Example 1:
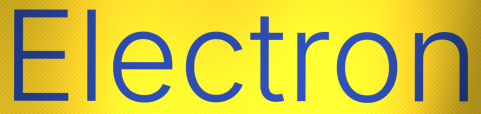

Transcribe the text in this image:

Electron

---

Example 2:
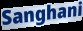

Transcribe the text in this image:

Sanghani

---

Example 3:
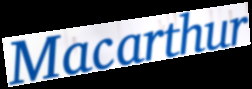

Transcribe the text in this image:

Macarthur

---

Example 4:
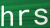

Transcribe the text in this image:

hrs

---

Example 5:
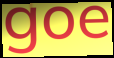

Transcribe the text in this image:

goe